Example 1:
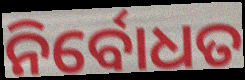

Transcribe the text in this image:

ନିର୍ବୋଧତ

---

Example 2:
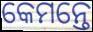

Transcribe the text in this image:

କେମନ୍ତେ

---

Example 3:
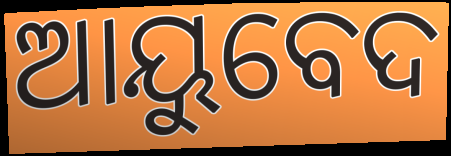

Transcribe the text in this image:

ଆୟୁବେଦ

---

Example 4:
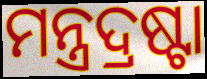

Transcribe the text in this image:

ମନ୍ତ୍ରଦ୍ରଷ୍ଟା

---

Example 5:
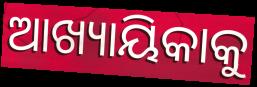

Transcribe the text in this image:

ଆଖ୍ୟାୟିକାକୁ